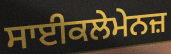
ਸਾਈਕਲੇਮੇਨਜ਼